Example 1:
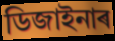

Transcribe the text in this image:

ডিজাইনাৰ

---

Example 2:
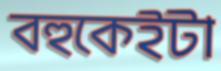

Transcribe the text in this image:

বহুকেইটা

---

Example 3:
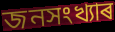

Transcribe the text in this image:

জনসংখ্যাৰ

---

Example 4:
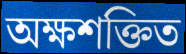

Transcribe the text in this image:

অক্ষশক্তিত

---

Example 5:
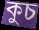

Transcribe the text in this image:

কুচ